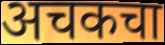
अचकचा